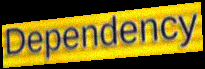
Dependency